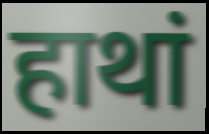
हाथां